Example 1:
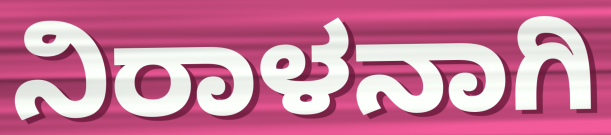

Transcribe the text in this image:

ನಿರಾಳನಾಗಿ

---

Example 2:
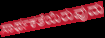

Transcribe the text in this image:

ಸಾರ್ಥಕತೆಯಿರುವುದು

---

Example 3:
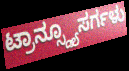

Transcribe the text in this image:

ಟ್ರಾನ್ಸ್ಡ್ಯೂಸರ್ಗಳು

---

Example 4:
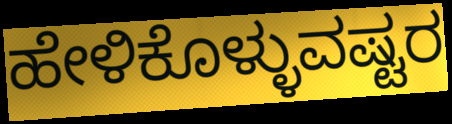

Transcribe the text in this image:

ಹೇಳಿಕೊಳ್ಳುವಷ್ಟರ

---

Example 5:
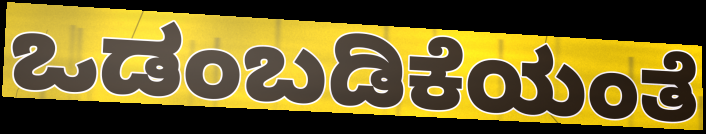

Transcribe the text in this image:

ಒಡಂಬಡಿಕೆಯಂತೆ